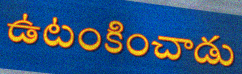
ఉటంకించాడు